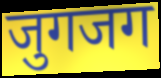
जुगजग